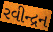
રવીન્દ્રન